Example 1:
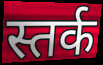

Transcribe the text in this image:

स्तर्क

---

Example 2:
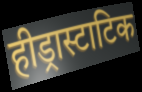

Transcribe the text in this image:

हीड्रास्टाटिक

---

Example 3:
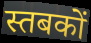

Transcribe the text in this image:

स्तबकों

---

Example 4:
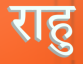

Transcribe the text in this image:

राहु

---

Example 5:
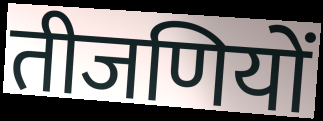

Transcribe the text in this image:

तीजणियों